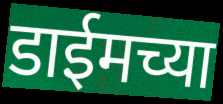
डाईमच्या